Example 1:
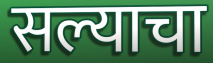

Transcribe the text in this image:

सल्याचा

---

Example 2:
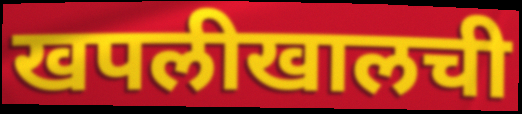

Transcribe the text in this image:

खपलीखालची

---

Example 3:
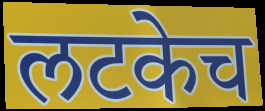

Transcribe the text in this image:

लटकेच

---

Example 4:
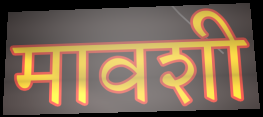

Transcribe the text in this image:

मावशी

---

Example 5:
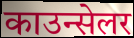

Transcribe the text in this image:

काउन्सेलर